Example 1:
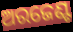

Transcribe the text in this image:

ଅରଜେଣ୍ଟ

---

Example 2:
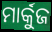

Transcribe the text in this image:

ମାର୍କୁଜ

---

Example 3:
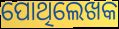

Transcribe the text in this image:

ପୋଥିଲେଖକ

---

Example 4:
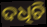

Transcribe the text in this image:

ଦଧିଚି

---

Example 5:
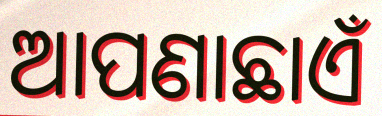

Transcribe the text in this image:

ଆପଣାଛାଏଁ